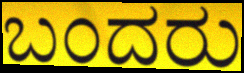
ಬಂದರು